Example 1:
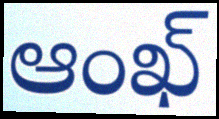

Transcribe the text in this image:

ఆంఖ్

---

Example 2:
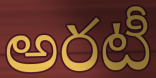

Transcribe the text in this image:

అరటీ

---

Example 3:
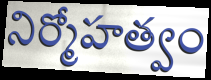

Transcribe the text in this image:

నిర్మోహత్వం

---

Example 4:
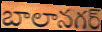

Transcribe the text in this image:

బాలానగర్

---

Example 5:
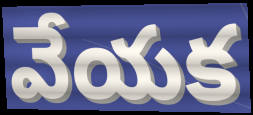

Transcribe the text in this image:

వేయక